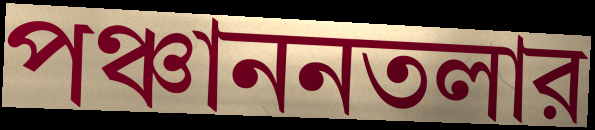
পঞ্চাননতলার